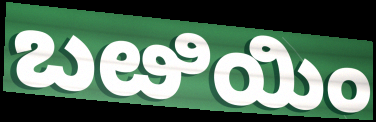
ಬೞಿಯಿಂ